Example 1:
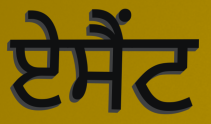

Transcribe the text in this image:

ਏਸੈਂਟ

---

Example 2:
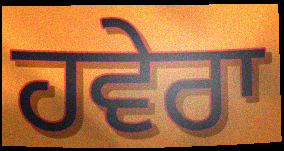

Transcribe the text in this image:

ਹਵੇਰਾ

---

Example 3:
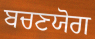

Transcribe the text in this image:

ਬਚਣਯੋਗ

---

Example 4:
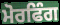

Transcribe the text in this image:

ਮੋਰਫਿੰਗ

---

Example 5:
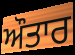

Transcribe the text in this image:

ਔਤਾਰ